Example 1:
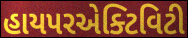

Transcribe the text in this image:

હાયપરએક્ટિવિટી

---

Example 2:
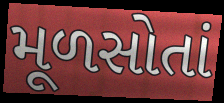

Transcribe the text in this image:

મૂળસોતાં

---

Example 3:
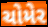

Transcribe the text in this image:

ચોમેર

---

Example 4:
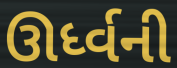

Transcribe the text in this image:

ઊર્ધ્વની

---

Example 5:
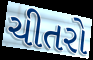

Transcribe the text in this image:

ચીતરો